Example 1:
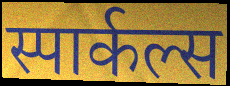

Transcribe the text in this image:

स्पार्कल्स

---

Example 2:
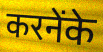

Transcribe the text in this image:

करनेंके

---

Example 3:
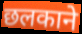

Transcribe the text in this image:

छलकाने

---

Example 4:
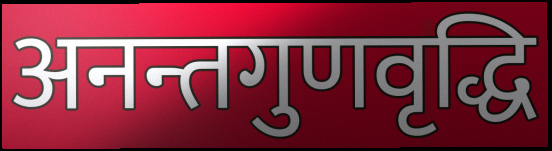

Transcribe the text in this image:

अनन्तगुणवृद्धि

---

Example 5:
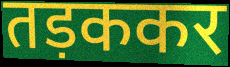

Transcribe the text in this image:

तड़ककर